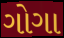
ગોગા